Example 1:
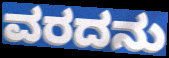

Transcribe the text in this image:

ವರದನು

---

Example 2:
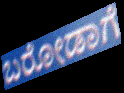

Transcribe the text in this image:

ಬರೋಡಾಗೆ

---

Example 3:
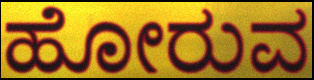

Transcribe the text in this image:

ಹೋರುವ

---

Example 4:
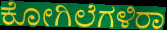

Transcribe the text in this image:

ಕೋಗಿಲೆಗಳಿರಾ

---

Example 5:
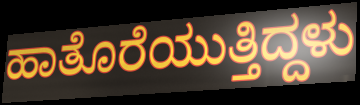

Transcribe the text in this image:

ಹಾತೊರೆಯುತ್ತಿದ್ದಳು